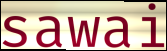
sawai